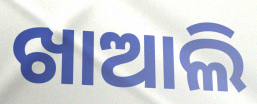
ଖାଆଲି